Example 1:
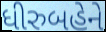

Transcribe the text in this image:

ધીરુબહેને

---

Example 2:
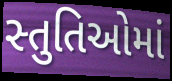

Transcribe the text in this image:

સ્તુતિઓમાં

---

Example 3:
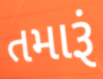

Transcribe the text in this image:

તમારૂં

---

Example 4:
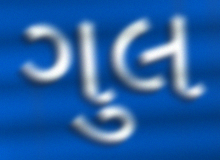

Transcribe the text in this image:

ગુલ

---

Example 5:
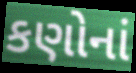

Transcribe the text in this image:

કણોનાં